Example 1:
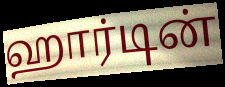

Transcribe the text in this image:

ஹார்டின்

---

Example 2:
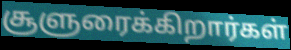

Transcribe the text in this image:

சூளுரைக்கிறார்கள்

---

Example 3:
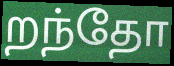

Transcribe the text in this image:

றந்தோ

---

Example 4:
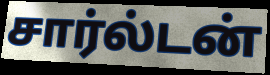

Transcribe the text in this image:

சார்ல்டன்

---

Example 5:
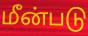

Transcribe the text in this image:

மீன்படு